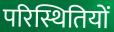
परिस्थितियों